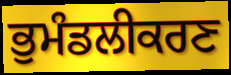
ਭੁਮੰਡਲੀਕਰਣ